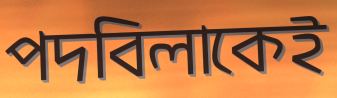
পদবিলাকেই